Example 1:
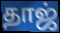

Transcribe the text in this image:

தாஜ்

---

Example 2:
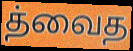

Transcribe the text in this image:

த்வைத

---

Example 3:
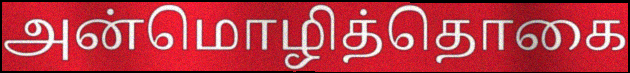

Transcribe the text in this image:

அன்மொழித்தொகை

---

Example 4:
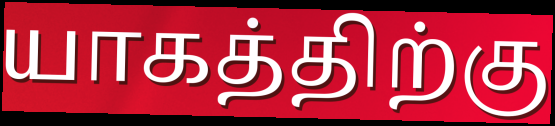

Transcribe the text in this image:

யாகத்திற்கு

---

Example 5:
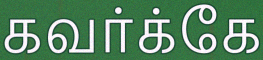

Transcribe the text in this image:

கவர்க்கே